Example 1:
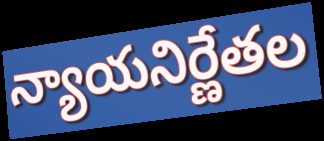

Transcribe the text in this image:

న్యాయనిర్ణేతల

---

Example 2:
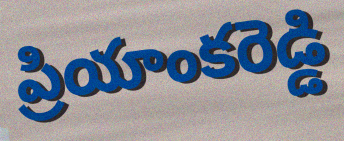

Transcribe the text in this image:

ప్రియాంకరెడ్డి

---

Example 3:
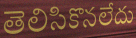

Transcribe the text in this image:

తెలిసికొనలేదు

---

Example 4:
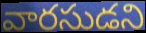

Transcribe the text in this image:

వారసుడని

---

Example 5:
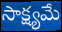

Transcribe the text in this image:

సాక్ష్యమే